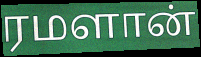
ரமளான்